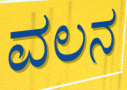
ವಲನ